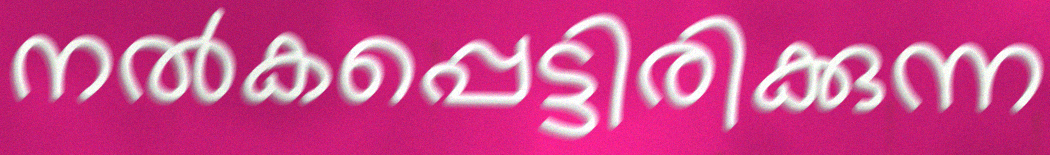
നൽകപ്പെട്ടിരിക്കുന്ന